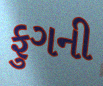
ફુગની